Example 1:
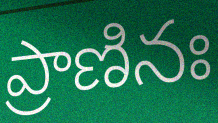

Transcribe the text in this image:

ప్రాణినః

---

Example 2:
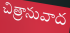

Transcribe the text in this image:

చిత్రానువాద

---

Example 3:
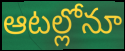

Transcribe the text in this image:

ఆటల్లోనూ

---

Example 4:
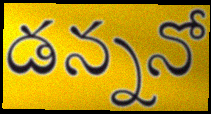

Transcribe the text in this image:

డన్ననో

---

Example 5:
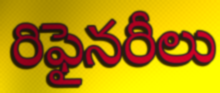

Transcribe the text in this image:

రిఫైనరీలు